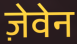
ज़ेवेन